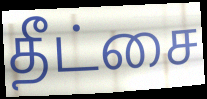
தீட்சை